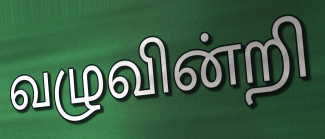
வழுவின்றி